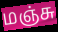
மஞ்சு